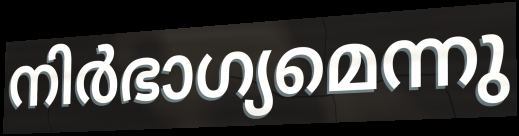
നിർഭാഗ്യമെന്നു